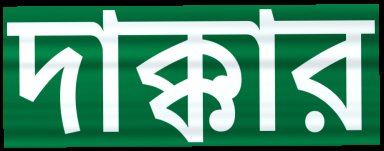
দাক্কার